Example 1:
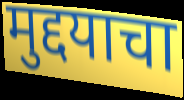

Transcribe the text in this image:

मुद्दयाचा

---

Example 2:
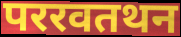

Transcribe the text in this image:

पररवतथन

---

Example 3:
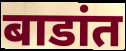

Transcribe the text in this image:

बाडांत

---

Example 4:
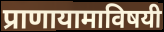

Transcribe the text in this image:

प्राणायामाविषयी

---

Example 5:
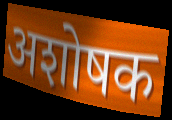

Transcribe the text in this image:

अशोषक